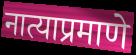
नात्याप्रमाणे